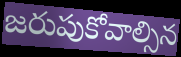
జరుపుకోవాల్సిన